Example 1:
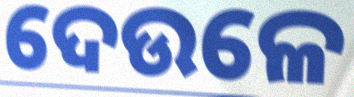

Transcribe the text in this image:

ଦେଉଳେ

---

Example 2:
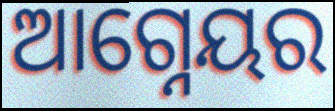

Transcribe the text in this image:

ଆଗ୍ନେୟର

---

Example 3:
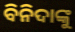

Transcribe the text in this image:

ବିନିଦାଙ୍କୁ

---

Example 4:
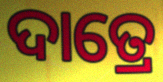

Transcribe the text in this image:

ଦାତ୍ରେ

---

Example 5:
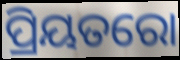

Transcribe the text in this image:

ପ୍ରିୟତରୋ